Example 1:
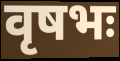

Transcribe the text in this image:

वृषभः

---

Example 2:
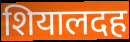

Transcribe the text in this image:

शियालदह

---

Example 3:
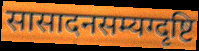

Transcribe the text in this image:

सासादनसम्यग्दृष्टि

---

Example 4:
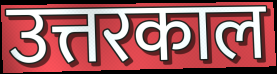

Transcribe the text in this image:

उत्तरकाल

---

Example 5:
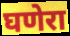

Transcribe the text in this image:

घणेरा